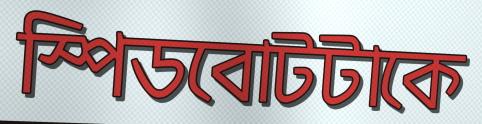
স্পিডবোটটাকে